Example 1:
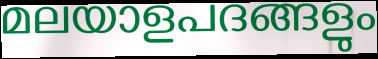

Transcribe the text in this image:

മലയാളപദങ്ങളും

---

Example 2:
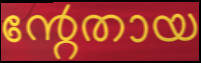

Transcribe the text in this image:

ന്റേതായ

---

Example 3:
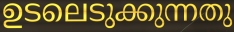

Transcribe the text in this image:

ഉടലെടുക്കുന്നതു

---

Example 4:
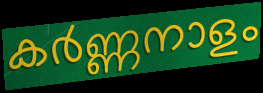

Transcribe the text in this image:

കർണ്ണനാളം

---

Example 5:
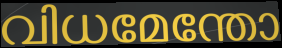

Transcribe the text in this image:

വിധമേന്തോ